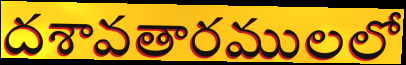
దశావతారములలో